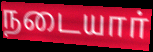
நடையார்